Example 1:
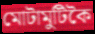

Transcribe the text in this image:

মোটামুটিকৈ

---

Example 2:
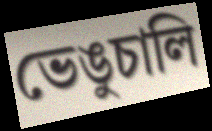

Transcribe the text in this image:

ভেঙুচালি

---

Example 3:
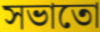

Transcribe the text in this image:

সভাতো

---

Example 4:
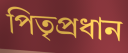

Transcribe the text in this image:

পিতৃপ্ৰধান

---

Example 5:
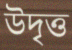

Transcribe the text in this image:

উদৃত্ত